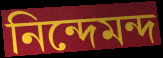
নিন্দেমন্দ